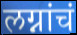
लग्नांचं